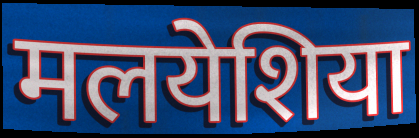
मलयेशिया